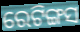
ରେଟିଙ୍ଗସ